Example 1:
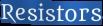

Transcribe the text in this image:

Resistors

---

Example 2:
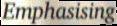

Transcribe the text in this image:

Emphasising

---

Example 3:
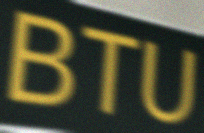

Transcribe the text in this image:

BTU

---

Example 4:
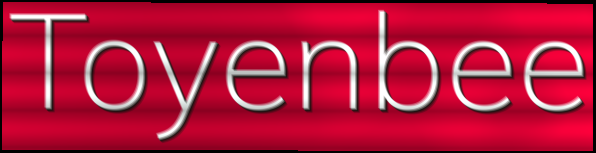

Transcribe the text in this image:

Toyenbee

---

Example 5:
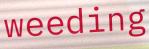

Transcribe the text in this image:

weeding